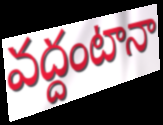
వద్దంటానా